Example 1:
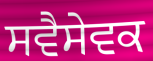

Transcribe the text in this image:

ਸਵੈਸੇਵਕ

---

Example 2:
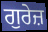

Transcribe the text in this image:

ਗੁਰੇਜ਼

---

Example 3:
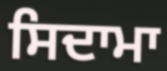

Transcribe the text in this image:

ਸਿਦਾਮਾ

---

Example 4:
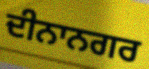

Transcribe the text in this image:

ਦੀਨਾਨਗਰ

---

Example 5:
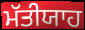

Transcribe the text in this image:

ਮੱਤੀਯਾਹ